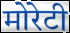
मोरेटी